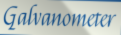
Galvanometer